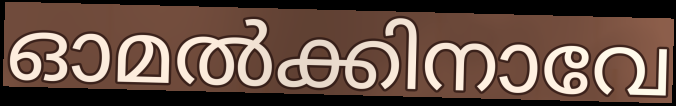
ഓമൽക്കിനാവേ